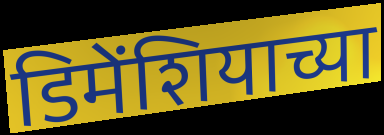
डिमेंशियाच्या